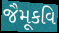
જૈમૂકવિ